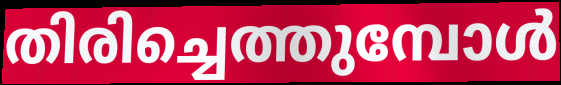
തിരിച്ചെത്തുമ്പോൾ